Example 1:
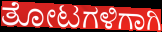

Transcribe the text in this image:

ತೋಟಗಳಿಗಾಗಿ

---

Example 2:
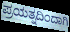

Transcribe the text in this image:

ಪ್ರಯತ್ನದಿಂದಾಗಿ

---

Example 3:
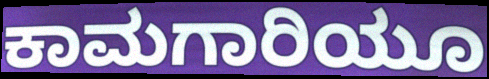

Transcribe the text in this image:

ಕಾಮಗಾರಿಯೂ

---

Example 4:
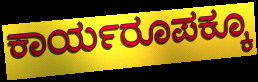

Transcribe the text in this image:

ಕಾರ್ಯರೂಪಕ್ಕೂ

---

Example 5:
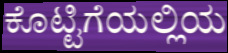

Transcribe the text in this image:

ಕೊಟ್ಟಿಗೆಯಲ್ಲಿಯ